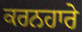
ਕਰਨਹਾਰੇ